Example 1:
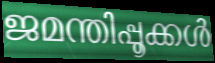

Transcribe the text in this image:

ജമന്തിപ്പൂക്കൾ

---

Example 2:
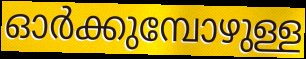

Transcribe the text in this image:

ഓർക്കുമ്പോഴുള്ള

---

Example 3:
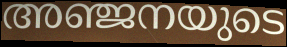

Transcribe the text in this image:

അഞ്ജനയുടെ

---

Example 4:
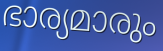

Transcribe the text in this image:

ഭാര്യമാരും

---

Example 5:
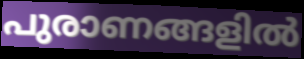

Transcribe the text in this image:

പുരാണങ്ങളിൽ